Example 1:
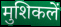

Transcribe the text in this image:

मुशिकलें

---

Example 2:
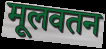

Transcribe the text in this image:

मूलवतन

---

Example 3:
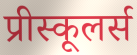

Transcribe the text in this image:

प्रीस्कूलर्स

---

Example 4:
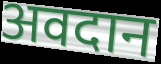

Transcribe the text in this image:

अवदान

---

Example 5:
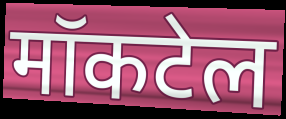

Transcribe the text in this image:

मॉकटेल